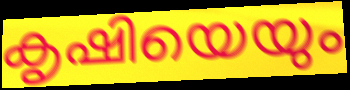
കൃഷിയെയും